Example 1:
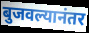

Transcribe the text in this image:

बुजवल्यानंतर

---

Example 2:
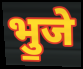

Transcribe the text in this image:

भु॒जे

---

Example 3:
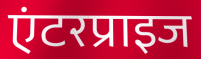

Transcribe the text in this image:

एंटरप्राइज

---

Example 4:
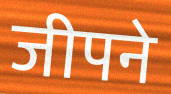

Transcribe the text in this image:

जीपने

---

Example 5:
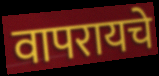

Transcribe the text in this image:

वापरायचे